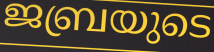
ജബ്രയുടെ